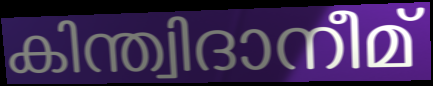
കിന്ത്വിദാനീമ്